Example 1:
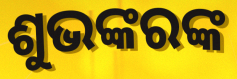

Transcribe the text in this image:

ଶୁଭଙ୍କରଙ୍କ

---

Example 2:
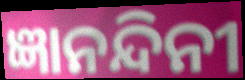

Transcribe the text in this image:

ଜ୍ଞାନନ୍ଦିନୀ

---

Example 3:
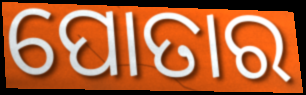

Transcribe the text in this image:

ପୋତାର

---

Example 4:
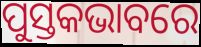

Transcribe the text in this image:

ପୁସ୍ତକଭାବରେ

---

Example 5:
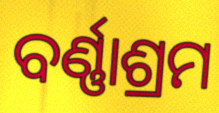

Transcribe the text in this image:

ବର୍ଣ୍ଣାଶ୍ରମ